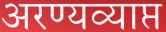
अरण्यव्याप्त